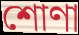
শোণা